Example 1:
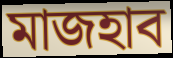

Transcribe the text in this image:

মাজহাব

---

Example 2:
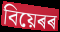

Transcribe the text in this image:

বিয়েৰৰ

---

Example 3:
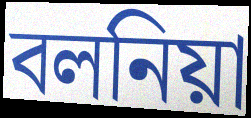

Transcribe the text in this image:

বলনিয়া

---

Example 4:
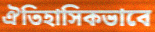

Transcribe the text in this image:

ঐতিহাসিকভাবে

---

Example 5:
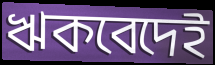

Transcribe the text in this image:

ঋকবেদেই